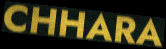
CHHARA